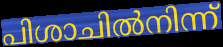
പിശാചിൽനിന്ന്